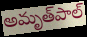
అమృత్‌పాల్